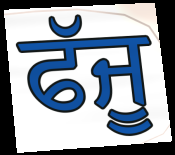
ਫੱਜੂ